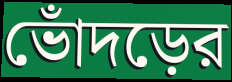
ভোঁদড়ের